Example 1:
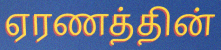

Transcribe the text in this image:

ஏரணத்தின்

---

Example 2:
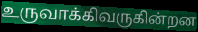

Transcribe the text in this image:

உருவாக்கிவருகின்றன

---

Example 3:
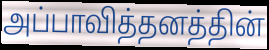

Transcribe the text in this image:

அப்பாவித்தனத்தின்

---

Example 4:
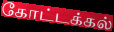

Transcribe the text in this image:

கோட்டக்கல்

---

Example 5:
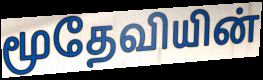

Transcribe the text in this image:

மூதேவியின்